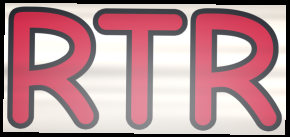
RTR